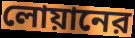
লোয়ানের